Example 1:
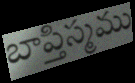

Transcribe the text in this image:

బాప్తిస్మము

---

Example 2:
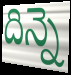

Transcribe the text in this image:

దిన్నె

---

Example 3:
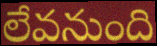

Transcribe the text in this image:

లేవనుంది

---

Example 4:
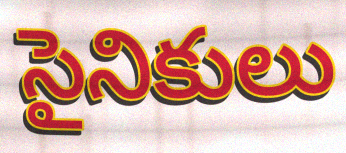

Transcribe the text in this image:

సైనికులు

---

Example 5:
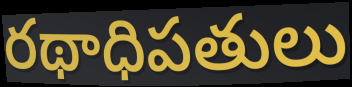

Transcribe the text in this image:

రథాధిపతులు